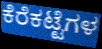
ಕೆರೆಕಟ್ಟೆಗಳ